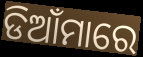
ଡିଆଁମାରେ